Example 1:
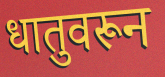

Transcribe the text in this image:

धातुवरून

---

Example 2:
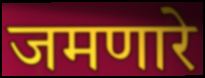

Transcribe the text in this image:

जमणारे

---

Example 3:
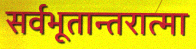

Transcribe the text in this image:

सर्वभूतान्तरात्मा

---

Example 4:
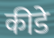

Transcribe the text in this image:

कीडे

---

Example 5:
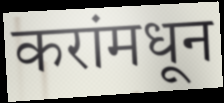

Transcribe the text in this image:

करांमधून